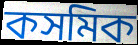
কসমিক